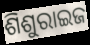
ଶିଶୁରାଇଜ